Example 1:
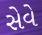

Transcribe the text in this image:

સેવે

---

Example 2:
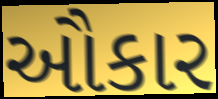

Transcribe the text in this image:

ઔકાર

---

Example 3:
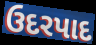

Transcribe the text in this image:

ઉદરપાદ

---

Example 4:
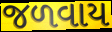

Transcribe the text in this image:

જળવાય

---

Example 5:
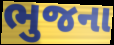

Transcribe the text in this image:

ભુજના